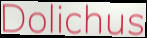
Dolichus